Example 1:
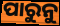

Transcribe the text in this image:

ପାରୁନୁ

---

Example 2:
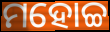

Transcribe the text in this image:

ମହୋଚ୍ଚ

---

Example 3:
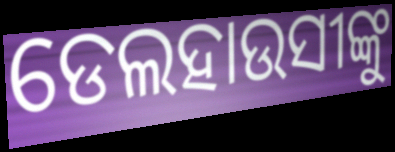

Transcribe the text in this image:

ଡେଲହାଉସୀଙ୍କୁ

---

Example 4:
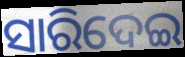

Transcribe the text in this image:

ସାରିଦେଇ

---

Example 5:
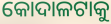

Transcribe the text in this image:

କୋଦାଳଟାକୁ